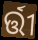
ର୍ତ୍ତୀ